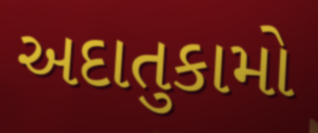
અદાતુકામો